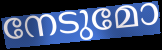
നേടുമോ